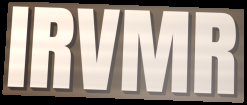
IRVMR